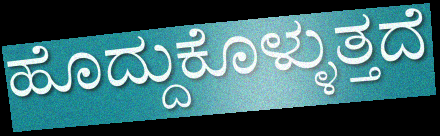
ಹೊದ್ದುಕೊಳ್ಳುತ್ತದೆ